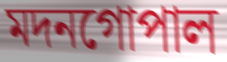
মদনগোপাল